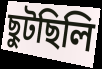
ছুটছিলি